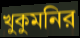
খুকুমনির